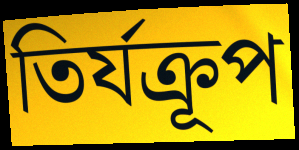
তির্যক্রূপ